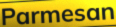
Parmesan